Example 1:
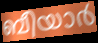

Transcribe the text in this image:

ബീയാർ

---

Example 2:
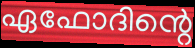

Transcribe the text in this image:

ഏഫോദിന്റെ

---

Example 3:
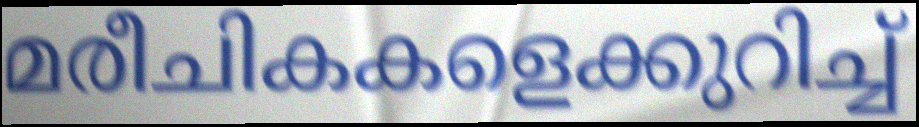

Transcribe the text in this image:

മരീചികകളെക്കുറിച്ച്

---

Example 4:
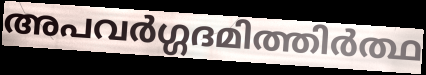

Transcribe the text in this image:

അപവർഗ്ഗദമിത്തിർത്ഥ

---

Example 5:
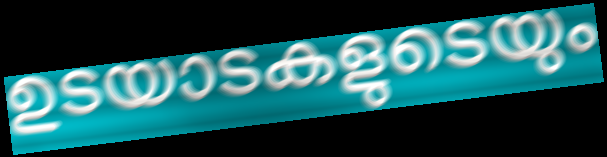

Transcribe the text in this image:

ഉടയാടകളുടെയും